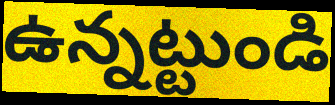
ఉన్నట్టుండి